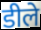
डीले